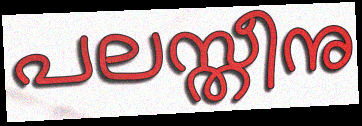
പലസ്തീനു